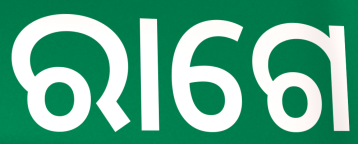
ରାଗେ